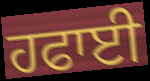
ਹਫਾਈ